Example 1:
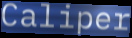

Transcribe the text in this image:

Caliper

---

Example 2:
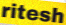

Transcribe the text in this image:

ritesh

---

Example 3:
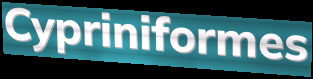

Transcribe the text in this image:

Cypriniformes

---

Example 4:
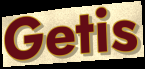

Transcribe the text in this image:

Getis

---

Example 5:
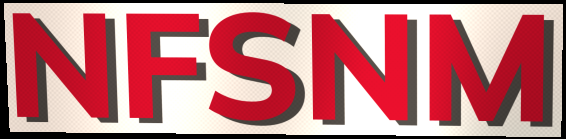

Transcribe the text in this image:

NFSNM